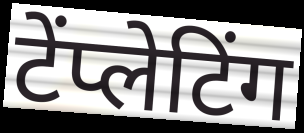
टेंप्लेटिंग